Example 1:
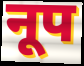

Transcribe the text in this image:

नूप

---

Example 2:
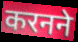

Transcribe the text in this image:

करनने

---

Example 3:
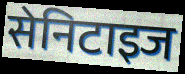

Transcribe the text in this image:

सेनिटाइज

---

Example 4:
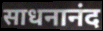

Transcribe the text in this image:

साधनानंद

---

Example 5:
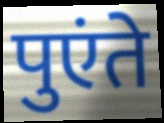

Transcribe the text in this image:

पुएंते